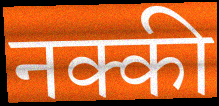
नक्की